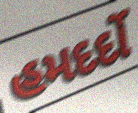
હમદર્દો